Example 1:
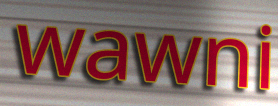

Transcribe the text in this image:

wawni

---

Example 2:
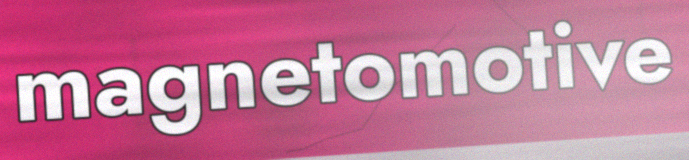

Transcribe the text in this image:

magnetomotive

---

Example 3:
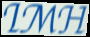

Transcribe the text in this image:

IMH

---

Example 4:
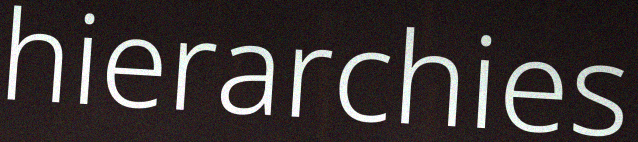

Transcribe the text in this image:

hierarchies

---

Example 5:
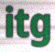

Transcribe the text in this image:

itg